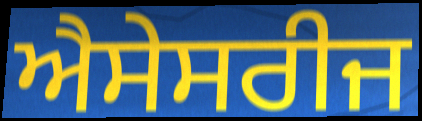
ਐਸੇਸਰੀਜ